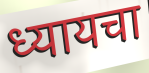
ध्यायचा